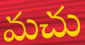
మచు